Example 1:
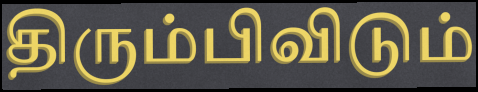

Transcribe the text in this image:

திரும்பிவிடும்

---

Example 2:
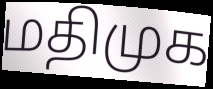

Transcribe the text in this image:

மதிமுக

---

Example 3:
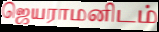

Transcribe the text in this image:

ஜெயராமனிடம்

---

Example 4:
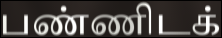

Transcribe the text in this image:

பண்ணிடக்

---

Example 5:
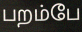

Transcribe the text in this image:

பறம்பே